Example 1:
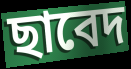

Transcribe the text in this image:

ছাবেদ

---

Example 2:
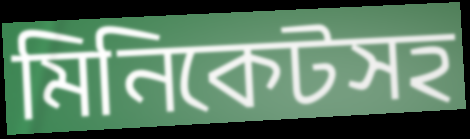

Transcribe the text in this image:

মিনিকেটসহ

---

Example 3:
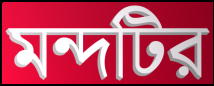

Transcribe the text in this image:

মন্দটির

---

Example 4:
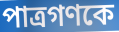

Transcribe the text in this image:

পাত্রগণকে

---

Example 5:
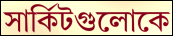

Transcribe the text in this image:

সার্কিটগুলোকে